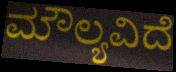
ಮೌಲ್ಯವಿದೆ